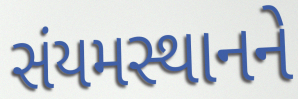
સંયમસ્થાનને